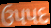
ઉપપદ